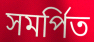
সমর্পিত